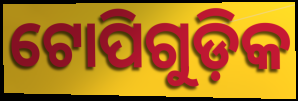
ଟୋପିଗୁଡ଼ିକ